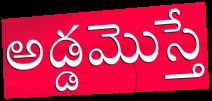
అడ్డమొస్తే